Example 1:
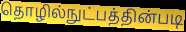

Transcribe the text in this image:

தொழில்நுட்பத்தின்படி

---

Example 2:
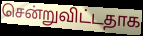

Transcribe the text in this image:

சென்றுவிட்டதாக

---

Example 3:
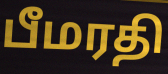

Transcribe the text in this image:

பீமரதி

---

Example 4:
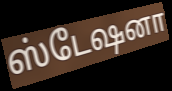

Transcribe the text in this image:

ஸ்டேஷனா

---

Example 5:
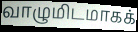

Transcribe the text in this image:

வாழுமிடமாகக்